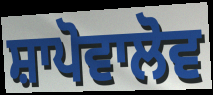
ਸ਼ਾਪੋਵਾਲੋਵ